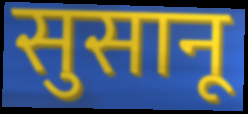
सुसानू